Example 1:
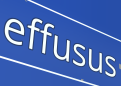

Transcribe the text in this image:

effusus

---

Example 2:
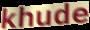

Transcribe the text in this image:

khude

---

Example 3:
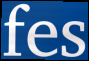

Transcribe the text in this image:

fes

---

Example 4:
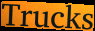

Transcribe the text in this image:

Trucks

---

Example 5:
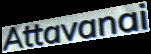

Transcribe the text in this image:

Attavanai